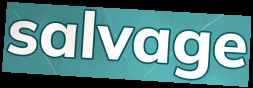
salvage